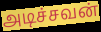
அடிச்சவன்